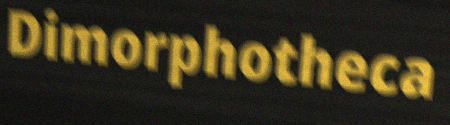
Dimorphotheca